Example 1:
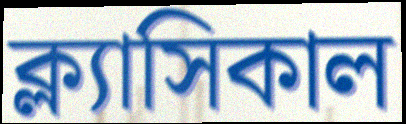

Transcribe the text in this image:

ক্ল্যাসিকাল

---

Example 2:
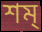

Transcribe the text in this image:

শম্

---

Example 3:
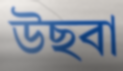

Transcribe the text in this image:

উছবা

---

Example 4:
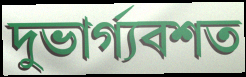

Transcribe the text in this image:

দুভার্গ্যবশত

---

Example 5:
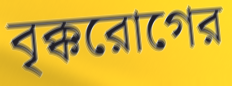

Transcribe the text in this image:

বৃক্করোগের